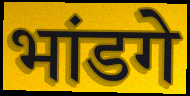
भांडगे